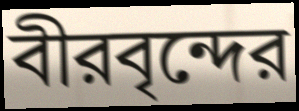
বীরবৃন্দের